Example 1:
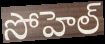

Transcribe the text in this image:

సోహెల్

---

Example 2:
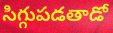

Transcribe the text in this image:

సిగ్గుపడతాడో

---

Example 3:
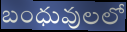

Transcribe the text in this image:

బంధువులలో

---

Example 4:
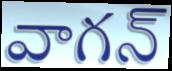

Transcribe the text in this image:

వాగన్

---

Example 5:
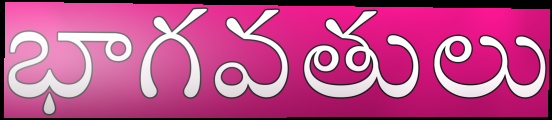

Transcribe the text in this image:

భాగవతులు